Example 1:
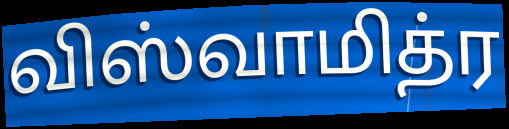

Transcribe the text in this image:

விஸ்வாமித்ர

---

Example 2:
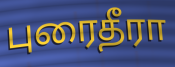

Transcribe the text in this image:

புரைதீரா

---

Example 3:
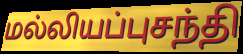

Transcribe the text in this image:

மல்லியப்புசந்தி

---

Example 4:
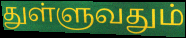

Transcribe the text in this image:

துள்ளுவதும்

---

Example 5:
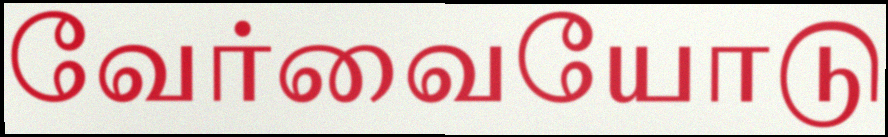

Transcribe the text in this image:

வேர்வையோடு